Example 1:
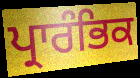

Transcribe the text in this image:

ਪ੍ਰਾਰੰਭਿਕ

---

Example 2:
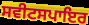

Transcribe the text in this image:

ਸਵੀਟਸਪਾਇਰ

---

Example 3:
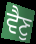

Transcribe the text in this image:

ਵੈਣੁ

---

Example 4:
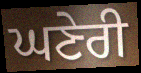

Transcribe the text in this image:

ਘਣੇਰੀ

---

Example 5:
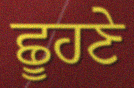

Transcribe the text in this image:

ਛੂਹਣੇ